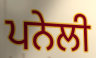
ਪਨੇਲੀ